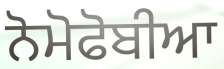
ਨੋਮੋਫੋਬੀਆ